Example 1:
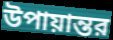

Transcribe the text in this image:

উপায়ান্তর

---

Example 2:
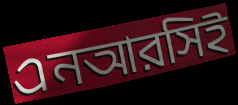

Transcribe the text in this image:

এনআরসিই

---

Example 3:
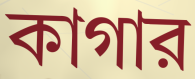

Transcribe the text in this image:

কাগার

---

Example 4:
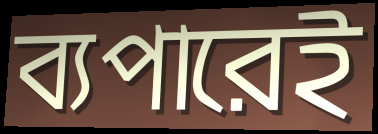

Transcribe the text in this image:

ব্যপারেই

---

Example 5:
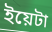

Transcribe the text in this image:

ইয়েটা